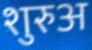
शुरुअ